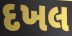
દખલ